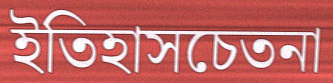
ইতিহাসচেতনা